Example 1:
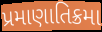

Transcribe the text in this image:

પ્રમાણાતિક્રમા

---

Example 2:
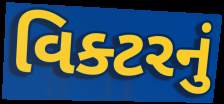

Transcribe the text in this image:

વિક્ટરનું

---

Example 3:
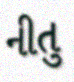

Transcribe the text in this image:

નીતુ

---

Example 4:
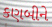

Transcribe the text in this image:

કણબીને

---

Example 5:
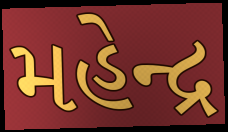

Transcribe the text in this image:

મહેન્દ્ર